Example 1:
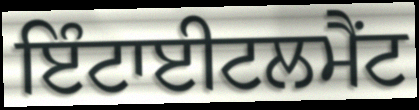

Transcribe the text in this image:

ਇੰਟਾਈਟਲਮੈਂਟ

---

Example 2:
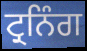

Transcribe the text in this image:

ਟ੍ਰਨਿੰਗ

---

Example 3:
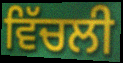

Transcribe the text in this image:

ਵਿੱਚਲੀ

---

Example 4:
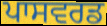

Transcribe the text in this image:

ਪਾਸਵਰਡ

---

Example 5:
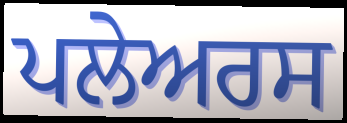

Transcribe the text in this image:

ਪਲੇਅਰਸ